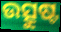
ଉତ୍ସୁଷ୍ଟ